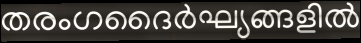
തരംഗദൈർഘ്യങ്ങളിൽ